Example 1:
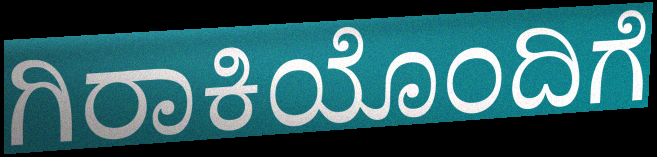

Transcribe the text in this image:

ಗಿರಾಕಿಯೊಂದಿಗೆ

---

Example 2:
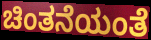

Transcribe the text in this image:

ಚಿಂತನೆಯಂತೆ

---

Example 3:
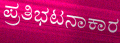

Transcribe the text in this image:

ಪ್ರತಿಭಟನಾಕಾರ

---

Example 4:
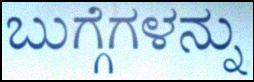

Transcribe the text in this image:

ಬುಗ್ಗೆಗಳನ್ನು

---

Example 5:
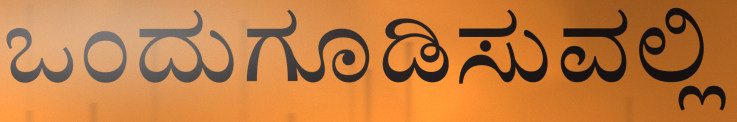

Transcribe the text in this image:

ಒಂದುಗೂಡಿಸುವಲ್ಲಿ